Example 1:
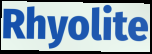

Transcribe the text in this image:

Rhyolite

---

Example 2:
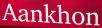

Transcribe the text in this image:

Aankhon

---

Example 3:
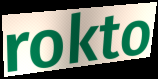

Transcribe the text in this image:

rokto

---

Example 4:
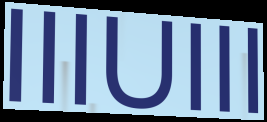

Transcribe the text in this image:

IIIUIII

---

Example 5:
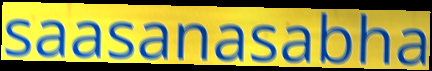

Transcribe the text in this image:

saasanasabha